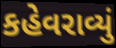
કહેવરાવ્યું